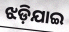
ଝଡ଼ିଯାଇ